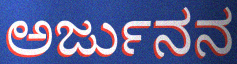
ಅರ್ಜುನನ